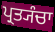
ਪ੍ਰਤ੍ਯੰਚਾ